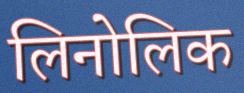
लिनोलिक